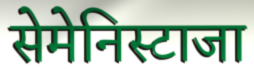
सेमेनिस्टाजा